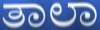
ತಾಲಾ